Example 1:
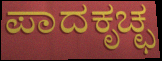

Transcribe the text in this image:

ಪಾದಕೃಚ್ಛ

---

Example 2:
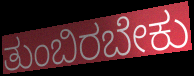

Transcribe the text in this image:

ತುಂಬಿರಬೇಕು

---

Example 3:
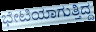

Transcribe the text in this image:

ಭೇಟಿಯಾಗುತ್ತಿದ್ದ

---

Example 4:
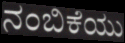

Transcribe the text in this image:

ನಂಬಿಕೆಯು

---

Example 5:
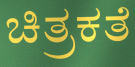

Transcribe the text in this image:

ಚಿತ್ರಕತೆ